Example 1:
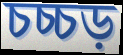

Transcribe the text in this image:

চচ্চড়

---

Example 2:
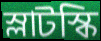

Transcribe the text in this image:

স্লাটস্কি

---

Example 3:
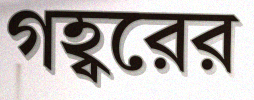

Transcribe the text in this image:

গহ্বরের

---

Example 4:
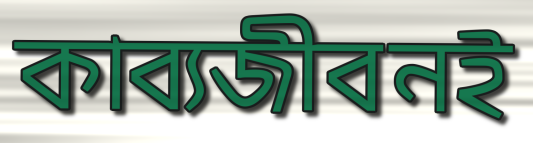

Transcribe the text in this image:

কাব্যজীবনই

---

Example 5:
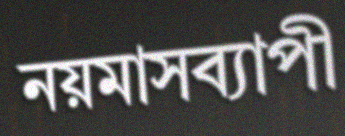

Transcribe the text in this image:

নয়মাসব্যাপী